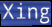
Xing